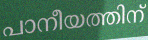
പാനീയത്തിന്